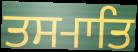
ਤਸ੍ਮਾਤਿ